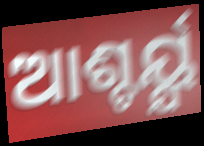
ଆଶ୍ଚର୍ୟ୍ଯ